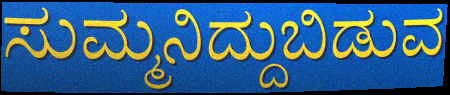
ಸುಮ್ಮನಿದ್ದುಬಿಡುವ